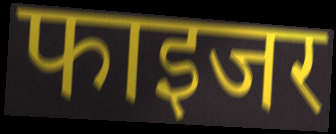
फाइजर